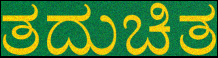
ತದುಚಿತ